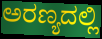
ಅರಣ್ಯದಲ್ಲಿ